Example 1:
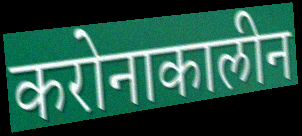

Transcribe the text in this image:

करोनाकालीन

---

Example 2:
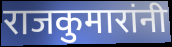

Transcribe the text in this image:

राजकुमारांनी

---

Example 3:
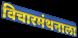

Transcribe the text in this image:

विचारमंथनाला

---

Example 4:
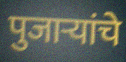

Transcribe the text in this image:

पुजाऱ्यांचे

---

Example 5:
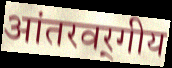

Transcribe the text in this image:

आंतरवर्गीय